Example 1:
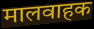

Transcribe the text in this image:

मालवाहक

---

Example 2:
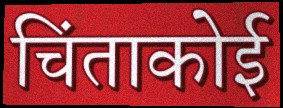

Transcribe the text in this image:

चिंताकोई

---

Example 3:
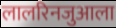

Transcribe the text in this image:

लालरिनजुआला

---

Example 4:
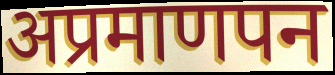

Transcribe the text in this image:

अप्रमाणपन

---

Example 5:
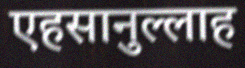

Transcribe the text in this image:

एहसानुल्लाह